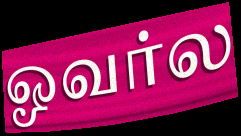
ஓவர்ல